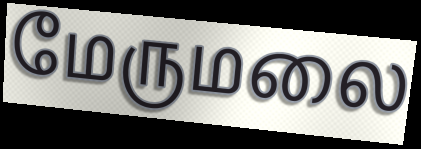
மேருமலை